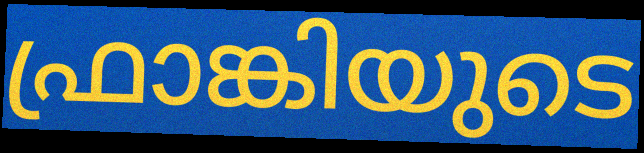
ഫ്രാങ്കിയുടെ